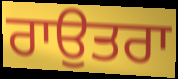
ਰਾਉਤਰਾ